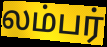
லம்பர்